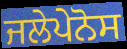
ਜਲੇਪੇਨੋਸ